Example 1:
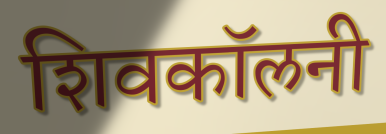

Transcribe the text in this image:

शिवकॉलनी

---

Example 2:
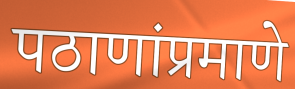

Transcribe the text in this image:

पठाणांप्रमाणे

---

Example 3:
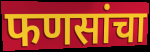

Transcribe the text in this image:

फणसांचा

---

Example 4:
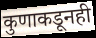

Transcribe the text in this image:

कुणाकडूनही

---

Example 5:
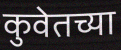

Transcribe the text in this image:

कुवेतच्या